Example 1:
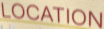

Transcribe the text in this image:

LOCATION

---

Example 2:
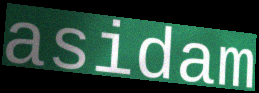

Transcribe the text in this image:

asidam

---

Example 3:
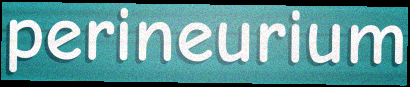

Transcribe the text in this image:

perineurium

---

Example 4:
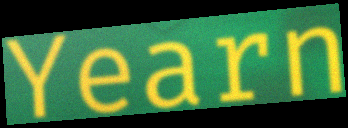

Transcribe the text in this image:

Yearn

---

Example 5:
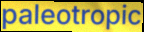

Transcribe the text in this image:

paleotropic